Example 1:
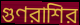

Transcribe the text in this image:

গুণরাশির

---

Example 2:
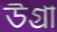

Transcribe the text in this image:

উগ্রা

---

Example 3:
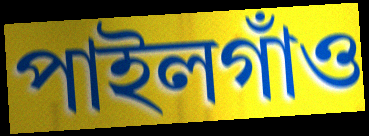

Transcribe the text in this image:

পাইলগাঁও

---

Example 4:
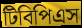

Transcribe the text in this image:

টিবিপিএস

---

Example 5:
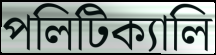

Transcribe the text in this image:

পলিটিক্যালি